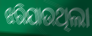
ଝରିଯାଉଥିଲା